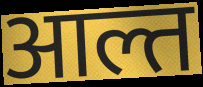
आल्त